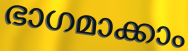
ഭാഗമാക്കാം